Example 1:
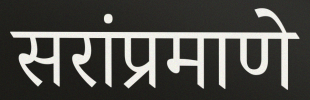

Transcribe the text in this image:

सरांप्रमाणे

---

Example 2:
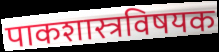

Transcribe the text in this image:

पाकशास्त्रविषयक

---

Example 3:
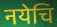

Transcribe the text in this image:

नयेचि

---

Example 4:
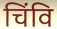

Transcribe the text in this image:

चिंवि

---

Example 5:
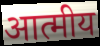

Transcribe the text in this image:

आत्मीय